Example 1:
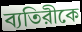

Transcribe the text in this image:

ব্যতিরীকে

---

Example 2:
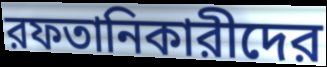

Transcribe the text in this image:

রফতানিকারীদের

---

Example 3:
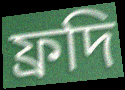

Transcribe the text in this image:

ফ্রদি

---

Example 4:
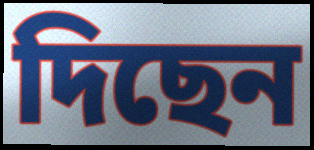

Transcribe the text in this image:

দিছেন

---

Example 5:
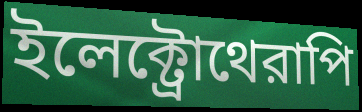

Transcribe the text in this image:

ইলেক্ট্রোথেরাপি